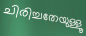
ചിരിച്ചതേയുള്ളൂ